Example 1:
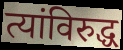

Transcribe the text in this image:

त्यांविरुद्ध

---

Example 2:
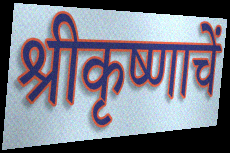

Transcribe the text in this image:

श्रीकृष्णाचें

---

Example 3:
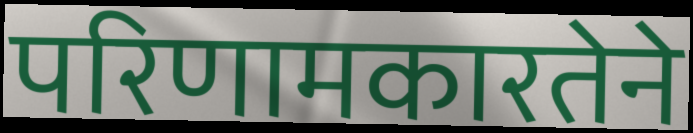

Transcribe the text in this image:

परिणामकारतेने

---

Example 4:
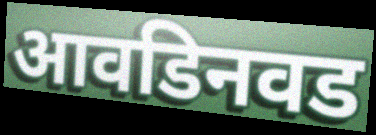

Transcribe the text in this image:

आवडिनवड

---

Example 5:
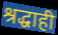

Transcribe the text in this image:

श्रद्धाही